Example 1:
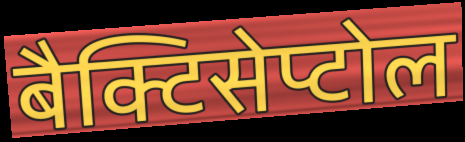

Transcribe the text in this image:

बैक्टिसेप्टोल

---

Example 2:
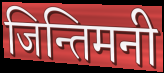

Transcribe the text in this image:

जिन्तिमनी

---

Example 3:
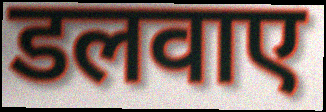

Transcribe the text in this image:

डलवाए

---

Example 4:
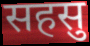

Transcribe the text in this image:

सहसु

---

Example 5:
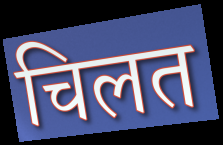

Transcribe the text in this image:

चिलत